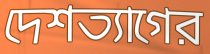
দেশত্যাগের